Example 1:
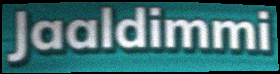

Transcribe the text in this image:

Jaaldimmi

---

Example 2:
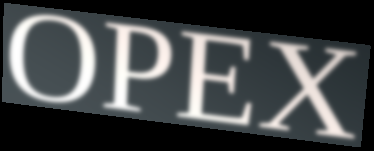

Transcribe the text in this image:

OPEX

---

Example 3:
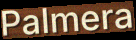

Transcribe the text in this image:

Palmera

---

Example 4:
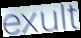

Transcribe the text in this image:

exult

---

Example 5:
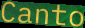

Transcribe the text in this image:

Canto